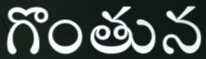
గొంతున